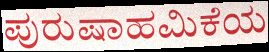
ಪುರುಷಾಹಮಿಕೆಯ